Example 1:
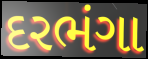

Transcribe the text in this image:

દરભંગા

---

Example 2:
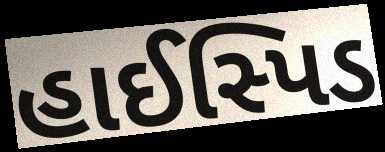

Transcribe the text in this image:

હાઈસ્પિડ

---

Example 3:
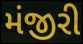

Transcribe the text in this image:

મંજીરી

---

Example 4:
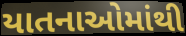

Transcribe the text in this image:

યાતનાઓમાંથી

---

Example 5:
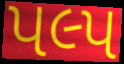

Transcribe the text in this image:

પલ્પ